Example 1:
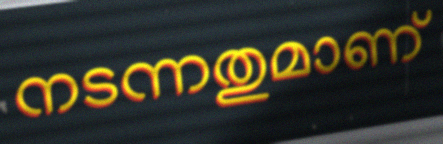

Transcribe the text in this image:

നടന്നതുമാണ്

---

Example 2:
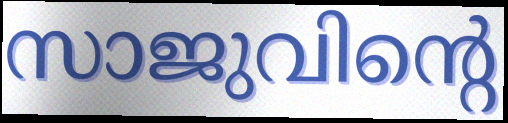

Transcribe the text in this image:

സാജുവിന്റെ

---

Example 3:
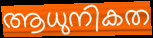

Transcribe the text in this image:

ആധുനികത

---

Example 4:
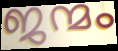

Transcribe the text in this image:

ജന്മം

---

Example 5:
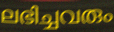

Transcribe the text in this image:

ലഭിച്ചവരും